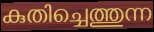
കുതിച്ചെത്തുന്ന